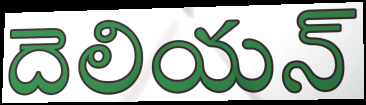
దెలియన్